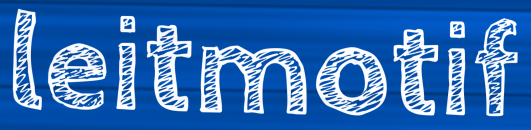
leitmotif